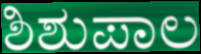
ಶಿಶುಪಾಲ